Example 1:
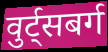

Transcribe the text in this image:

वुर्ट्सबर्ग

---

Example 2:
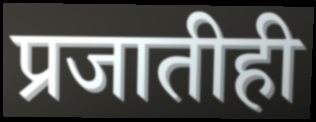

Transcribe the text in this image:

प्रजातीही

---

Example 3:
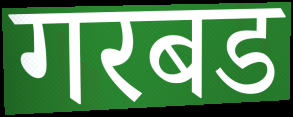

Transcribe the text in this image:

गरबड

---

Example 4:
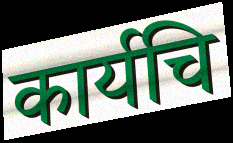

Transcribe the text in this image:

कार्यचि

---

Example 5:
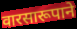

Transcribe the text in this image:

वारसारूपाने